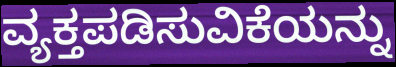
ವ್ಯಕ್ತಪಡಿಸುವಿಕೆಯನ್ನು